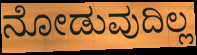
ನೋಡುವುದಿಲ್ಲ